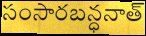
సంసారబన్ధనాత్